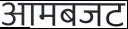
आमबजट